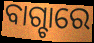
ବାଗ୍ଚାରେ